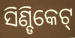
ସିଣ୍ଡିକେଟ୍